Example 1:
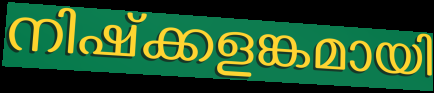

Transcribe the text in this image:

നിഷ്ക്കളങ്കമായി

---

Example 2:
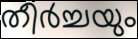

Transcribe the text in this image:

തീർച്ചയും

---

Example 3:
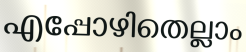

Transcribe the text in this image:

എപ്പോഴിതെല്ലാം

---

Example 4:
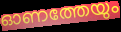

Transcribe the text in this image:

ഓണത്തേയും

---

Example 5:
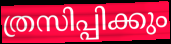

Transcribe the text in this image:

ത്രസിപ്പിക്കും